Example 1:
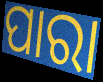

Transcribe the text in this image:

ପାରା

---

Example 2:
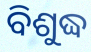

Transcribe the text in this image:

ବିଶୁଦ୍ଧ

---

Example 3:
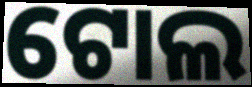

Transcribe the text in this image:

ଟୋଲ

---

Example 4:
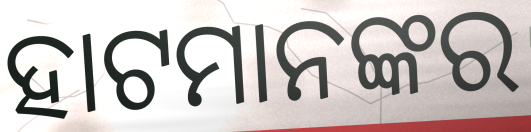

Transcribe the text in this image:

ହାଟମାନଙ୍କର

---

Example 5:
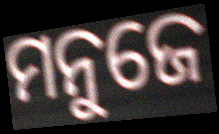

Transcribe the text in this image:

ମନୁଜେ